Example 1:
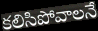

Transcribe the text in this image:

కలిసిపోవాలనే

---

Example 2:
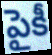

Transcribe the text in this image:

పైకీ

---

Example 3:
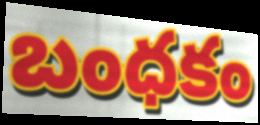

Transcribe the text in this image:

బంధకం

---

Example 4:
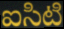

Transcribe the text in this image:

ఐసిటి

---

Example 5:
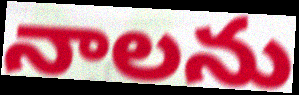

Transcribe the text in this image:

నాలను